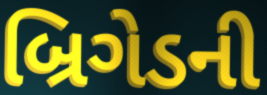
બ્રિગેડની